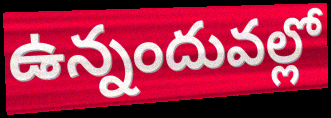
ఉన్నందువల్లో